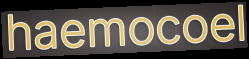
haemocoel